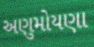
અણુમોયણા